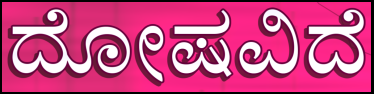
ದೋಷವಿದೆ